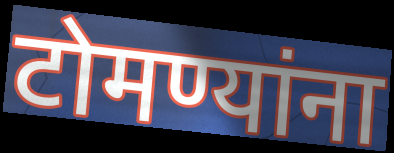
टोमण्यांना